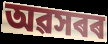
অৱসৰৰ